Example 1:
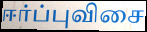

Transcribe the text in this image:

ஈர்ப்புவிசை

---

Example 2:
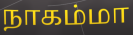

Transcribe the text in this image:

நாகம்மா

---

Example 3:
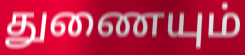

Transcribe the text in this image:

துணையும்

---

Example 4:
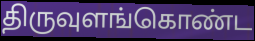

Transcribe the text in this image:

திருவுளங்கொண்ட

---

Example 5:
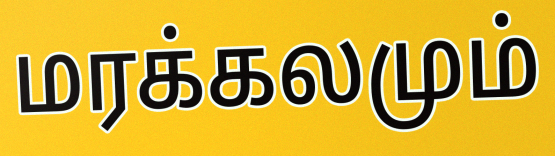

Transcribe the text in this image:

மரக்கலமும்